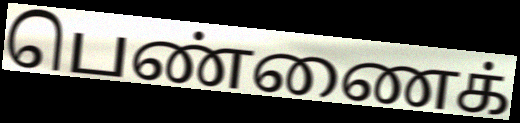
பெண்ணைக்